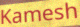
Kamesh